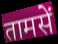
तामसें